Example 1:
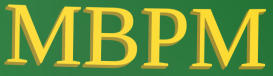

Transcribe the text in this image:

MBPM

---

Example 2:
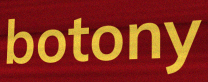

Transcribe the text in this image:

botony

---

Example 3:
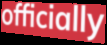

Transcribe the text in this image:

officially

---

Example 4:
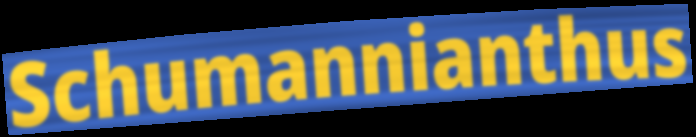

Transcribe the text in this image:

Schumannianthus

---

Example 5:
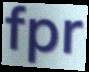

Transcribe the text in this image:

fpr